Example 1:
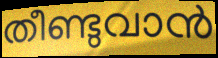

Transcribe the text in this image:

തീണ്ടുവാൻ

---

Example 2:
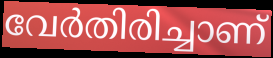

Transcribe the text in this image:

വേർതിരിച്ചാണ്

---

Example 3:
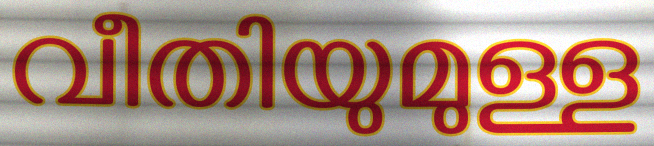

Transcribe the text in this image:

വീതിയുമുള്ള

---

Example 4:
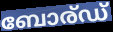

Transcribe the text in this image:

ബോര്ഡ്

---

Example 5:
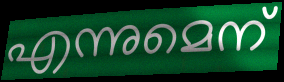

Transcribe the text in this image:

എന്നുമെന്